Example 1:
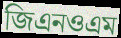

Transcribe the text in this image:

জিএনওএম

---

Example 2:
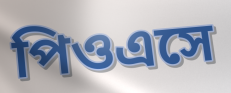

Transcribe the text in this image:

পিওএসে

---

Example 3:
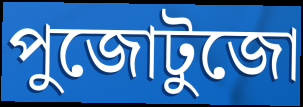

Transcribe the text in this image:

পুজোটুজো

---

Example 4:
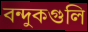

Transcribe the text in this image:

বন্দুকগুলি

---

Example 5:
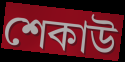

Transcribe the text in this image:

শেকাউ